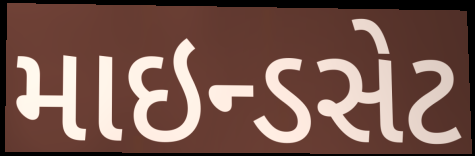
માઇન્ડસેટ